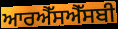
ਆਰਐੱਸਐੱਸਬੀ